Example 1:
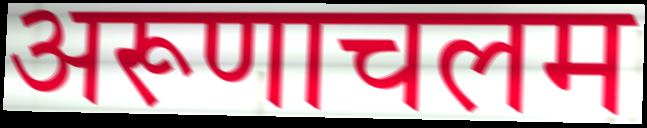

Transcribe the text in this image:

अरूणाचलम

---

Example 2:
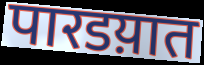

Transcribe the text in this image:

पारडय़ात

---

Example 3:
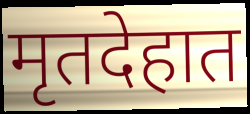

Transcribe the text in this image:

मृतदेहात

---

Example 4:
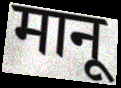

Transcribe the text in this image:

मानू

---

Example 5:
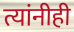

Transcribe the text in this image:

त्यांनीही